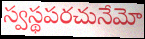
స్వస్థపరచునేమో